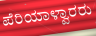
ಪೆರಿಯಾಳ್ವಾರರು